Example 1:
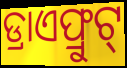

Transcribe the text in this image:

ଡ୍ରାଏଫ୍ରୁଟ୍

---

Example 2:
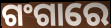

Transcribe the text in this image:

ଗଂଗାରେ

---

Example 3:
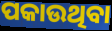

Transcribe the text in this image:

ପକାଉଥିବା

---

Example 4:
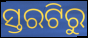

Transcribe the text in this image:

ସ୍ତରଟିରୁ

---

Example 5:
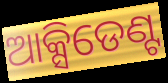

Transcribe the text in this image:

ଆକ୍ସିଡେଣ୍ଟ